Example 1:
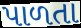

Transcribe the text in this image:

પાળતા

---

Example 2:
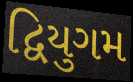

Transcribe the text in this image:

દ્વિયુગમ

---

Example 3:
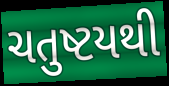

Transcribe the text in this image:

ચતુષ્ટયથી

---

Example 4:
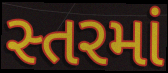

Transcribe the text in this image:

સ્તરમાં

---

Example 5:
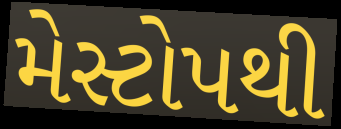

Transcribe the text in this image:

મેસ્ટોપથી